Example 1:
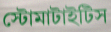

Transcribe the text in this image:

স্টোমাটাইটিস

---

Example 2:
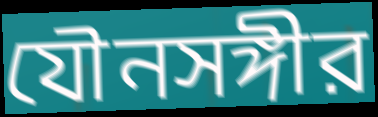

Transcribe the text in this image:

যৌনসঙ্গীর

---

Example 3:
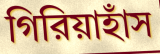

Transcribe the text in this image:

গিরিয়াহাঁস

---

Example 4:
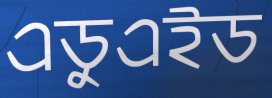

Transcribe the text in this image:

এডুএইড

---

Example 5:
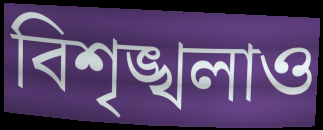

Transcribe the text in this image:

বিশৃঙ্খলাও